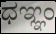
ಧಞ್ಞಂ